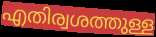
എതിര്വശത്തുള്ള